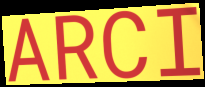
ARCI